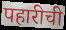
पहारीची